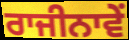
ਰਾਜੀਨਾਵੇਂ